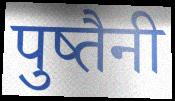
पुष्तैनी